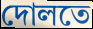
দোলতে